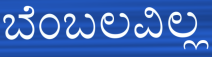
ಬೆಂಬಲವಿಲ್ಲ